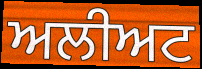
ਅਲੀਅਟ